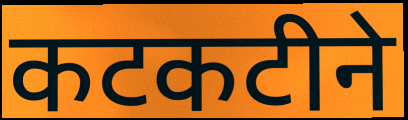
कटकटीने